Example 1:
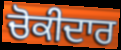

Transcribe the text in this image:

ਚੋਕੀਦਾਰ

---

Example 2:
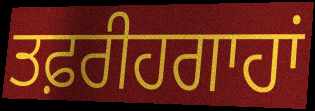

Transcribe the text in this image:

ਤਫ਼ਰੀਹਗਾਹਾਂ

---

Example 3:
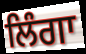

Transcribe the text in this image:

ਲਿੰਗਾ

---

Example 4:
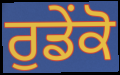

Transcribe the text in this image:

ਰੁਡੇਂਕੋ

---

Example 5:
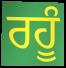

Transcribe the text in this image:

ਰਹੂੰ